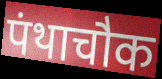
पंथाचौक